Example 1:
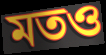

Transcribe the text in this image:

মতও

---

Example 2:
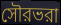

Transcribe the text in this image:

সৌরভরা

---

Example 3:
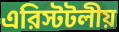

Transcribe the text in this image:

এরিস্টটলীয়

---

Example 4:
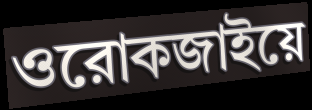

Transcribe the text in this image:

ওরোকজাইয়ে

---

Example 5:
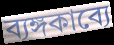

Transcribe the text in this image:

ব্যঙ্গকাব্যে